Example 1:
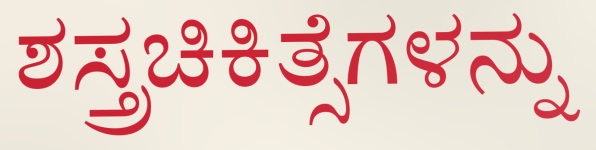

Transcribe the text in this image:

ಶಸ್ತ್ರಚಿಕಿತ್ಸೆಗಳನ್ನು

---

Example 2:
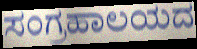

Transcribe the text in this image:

ಸಂಗ್ರಹಾಲಯದ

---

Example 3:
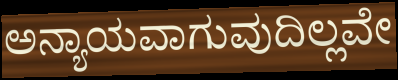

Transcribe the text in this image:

ಅನ್ಯಾಯವಾಗುವುದಿಲ್ಲವೇ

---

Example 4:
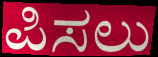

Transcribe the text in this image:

ಪಿಸಲು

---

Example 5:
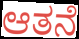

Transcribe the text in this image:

ಆತನೆ